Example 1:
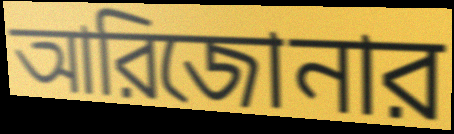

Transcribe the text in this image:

আরিজোনার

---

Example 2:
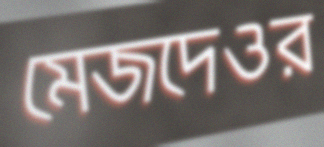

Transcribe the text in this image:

মেজদেওর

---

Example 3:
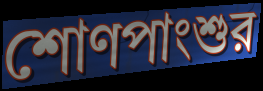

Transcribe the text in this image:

শোণপাংশুর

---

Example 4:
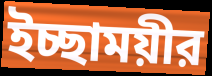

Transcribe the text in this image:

ইচ্ছাময়ীর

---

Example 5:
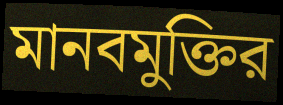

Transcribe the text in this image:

মানবমুক্তির